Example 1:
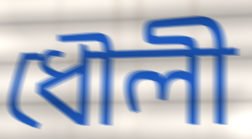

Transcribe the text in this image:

ধৌলী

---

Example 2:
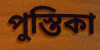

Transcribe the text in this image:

পুস্তিকা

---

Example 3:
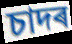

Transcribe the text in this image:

চাদৰ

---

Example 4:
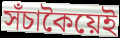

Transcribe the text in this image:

সঁচাকৈয়েই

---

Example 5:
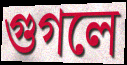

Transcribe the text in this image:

গুগলে